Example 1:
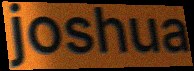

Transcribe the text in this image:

joshua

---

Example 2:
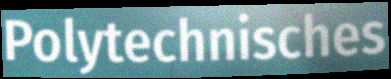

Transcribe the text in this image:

Polytechnisches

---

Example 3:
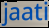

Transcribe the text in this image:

jaati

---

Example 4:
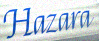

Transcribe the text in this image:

Hazara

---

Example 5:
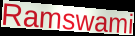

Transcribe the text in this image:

Ramswami